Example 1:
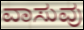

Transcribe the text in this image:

ವಾಸುವು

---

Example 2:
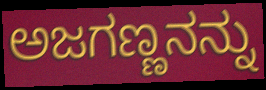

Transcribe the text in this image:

ಅಜಗಣ್ಣನನ್ನು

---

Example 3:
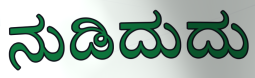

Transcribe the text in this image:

ನುಡಿದುದು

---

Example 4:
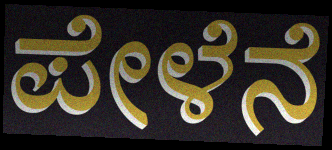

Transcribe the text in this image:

ಪೇಳೆನೆ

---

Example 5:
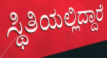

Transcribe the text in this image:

ಸ್ಥಿತಿಯಲ್ಲಿದ್ದಾರೆ